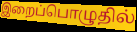
இறைப்பொழுதில்